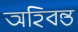
অহিবন্ত